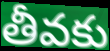
తీవకు